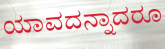
ಯಾವದನ್ನಾದರೂ